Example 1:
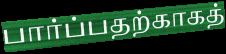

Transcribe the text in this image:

பார்ப்பதற்காகத்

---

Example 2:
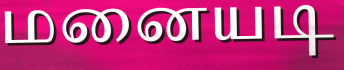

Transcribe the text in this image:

மனையடி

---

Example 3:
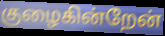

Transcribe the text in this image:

குழைகின்றேன்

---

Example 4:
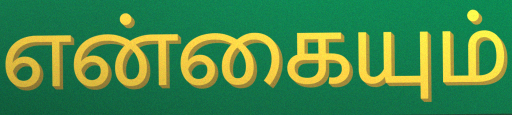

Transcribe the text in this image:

என்கையும்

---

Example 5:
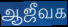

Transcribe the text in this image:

ஆஜீவக